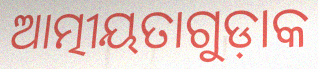
ଆତ୍ମୀୟତାଗୁଡ଼ାକ